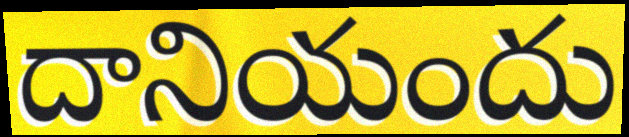
దానియందు